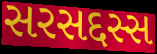
સરસદ્દસ્સ